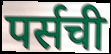
पर्सची